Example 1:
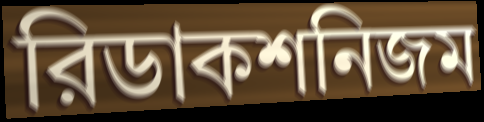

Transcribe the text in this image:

রিডাকশনিজম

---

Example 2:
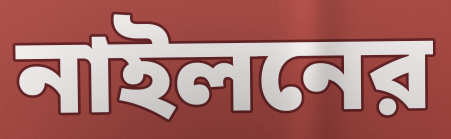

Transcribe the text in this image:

নাইলনের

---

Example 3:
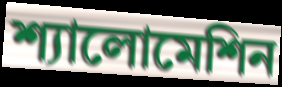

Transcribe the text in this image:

শ্যালোমেশিন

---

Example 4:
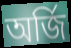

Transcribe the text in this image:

অর্জি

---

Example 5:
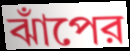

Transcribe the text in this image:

ঝাঁপের